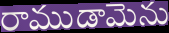
రాముడామెను